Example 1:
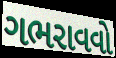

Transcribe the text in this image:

ગભરાવવો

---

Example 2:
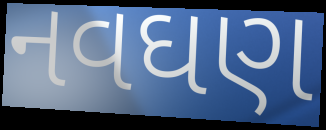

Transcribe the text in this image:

નવઘણ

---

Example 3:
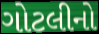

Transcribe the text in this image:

ગોટલીનો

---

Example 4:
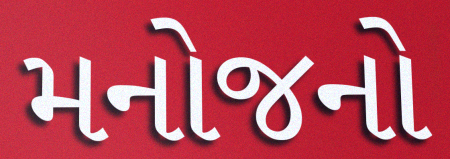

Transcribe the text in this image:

મનોજનો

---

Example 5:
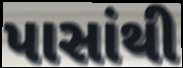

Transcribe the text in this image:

પાસાંથી